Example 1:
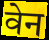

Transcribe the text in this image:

वेन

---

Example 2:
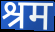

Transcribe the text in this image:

श्रम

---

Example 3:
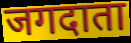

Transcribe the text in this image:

जगदाता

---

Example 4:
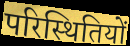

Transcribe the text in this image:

परिस्थितियों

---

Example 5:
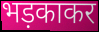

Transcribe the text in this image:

भड़काकर